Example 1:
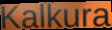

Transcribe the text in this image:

Kalkura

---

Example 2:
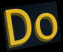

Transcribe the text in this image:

Do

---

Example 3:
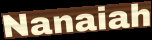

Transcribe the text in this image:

Nanaiah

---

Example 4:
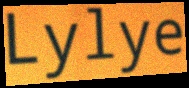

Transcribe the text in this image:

Lylye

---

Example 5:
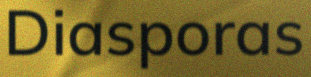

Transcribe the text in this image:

Diasporas